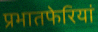
प्रभातफेरियां